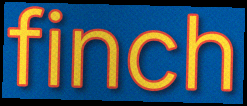
finch